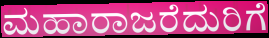
ಮಹಾರಾಜರೆದುರಿಗೆ